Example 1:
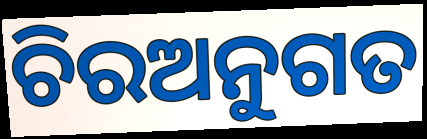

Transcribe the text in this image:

ଚିରଅନୁଗତ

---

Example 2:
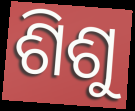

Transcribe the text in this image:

ଶିଶୁ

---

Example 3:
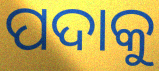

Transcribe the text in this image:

ପଦାକୁ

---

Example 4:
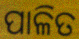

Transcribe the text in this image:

ପାଳିତ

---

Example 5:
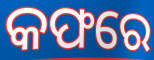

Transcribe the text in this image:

କଫରେ